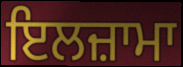
ਇਲਜ਼ਾਮਾ